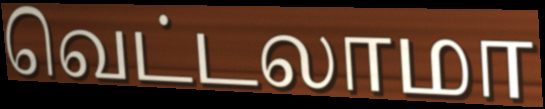
வெட்டலாமா